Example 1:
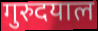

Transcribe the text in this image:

गुरुदयाल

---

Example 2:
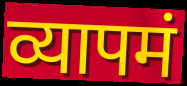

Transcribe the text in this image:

व्‍यापमं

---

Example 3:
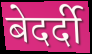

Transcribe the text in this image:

बेदर्दी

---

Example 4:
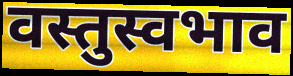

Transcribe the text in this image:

वस्तुस्वभाव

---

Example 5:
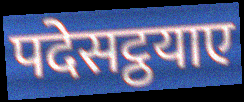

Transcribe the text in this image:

पदेसट्ठयाए